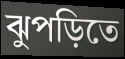
ঝুপড়িতে